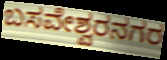
ಬಸವೇಶ್ವರನಗರ